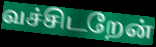
வச்சிடறேன்